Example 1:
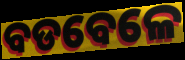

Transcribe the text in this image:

ବଡବେଳେ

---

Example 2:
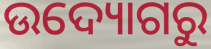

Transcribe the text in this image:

ଉଦ୍ୟୋଗରୁ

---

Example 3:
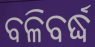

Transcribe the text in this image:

ବଳିବର୍ଦ୍ଧ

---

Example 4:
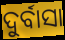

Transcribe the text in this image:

ଦୁର୍ବାସା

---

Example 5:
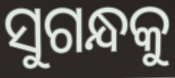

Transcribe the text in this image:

ସୁଗନ୍ଧକୁ